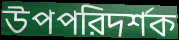
উপপরিদর্শক